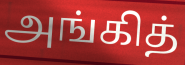
அங்கித்